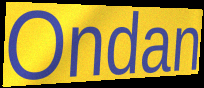
Ondan